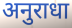
अनुराधा